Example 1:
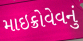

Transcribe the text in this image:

માઇક્રોવેવનું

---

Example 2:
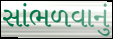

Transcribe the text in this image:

સાંભળવાનું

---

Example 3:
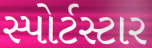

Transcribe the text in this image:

સ્પોર્ટસ્ટાર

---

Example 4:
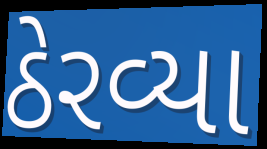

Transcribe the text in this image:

ઠેરવ્યા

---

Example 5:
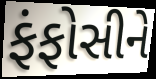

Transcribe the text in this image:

ફંફોસીને